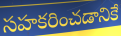
సహకరించడానికే